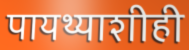
पायथ्याशीही